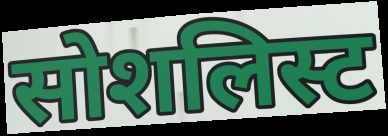
सोशलिस्ट